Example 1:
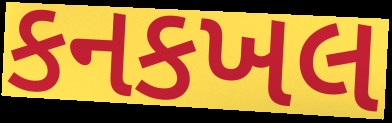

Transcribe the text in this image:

કનકખલ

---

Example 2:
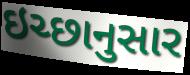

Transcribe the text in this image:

ઇચ્છાનુસાર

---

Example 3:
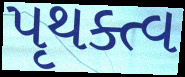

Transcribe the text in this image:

પૃથક્ત્વ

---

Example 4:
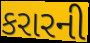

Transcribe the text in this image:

કરારની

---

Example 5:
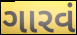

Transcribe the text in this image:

ગારવં